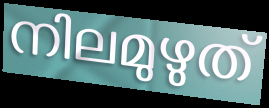
നിലമുഴുത്